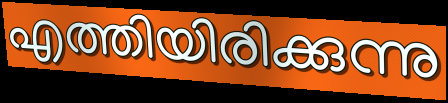
എത്തിയിരിക്കുന്നു